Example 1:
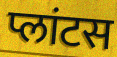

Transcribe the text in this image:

प्लांटस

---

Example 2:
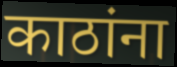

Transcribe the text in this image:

काठांना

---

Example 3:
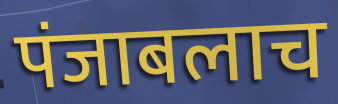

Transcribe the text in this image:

पंजाबलाच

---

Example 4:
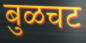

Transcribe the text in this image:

बुळचट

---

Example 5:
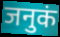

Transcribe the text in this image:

जनुकं